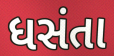
ધસંતા